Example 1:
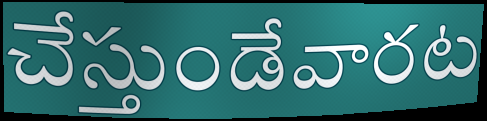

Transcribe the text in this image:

చేస్తుండేవారట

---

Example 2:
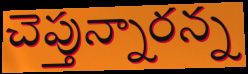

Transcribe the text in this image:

చెప్తున్నారన్న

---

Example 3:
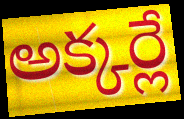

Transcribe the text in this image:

అక్కర్లే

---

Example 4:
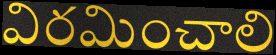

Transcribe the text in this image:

విరమించాలి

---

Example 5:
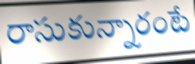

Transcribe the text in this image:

రాసుకున్నారంటే